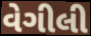
વેગીલી